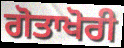
ਗੋਤਾਖੋਰੀ